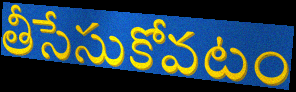
తీసేసుకోవటం